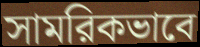
সামরিকভাবে